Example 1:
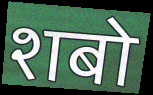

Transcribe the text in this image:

शबो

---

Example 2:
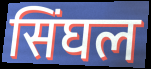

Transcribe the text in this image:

सिंघल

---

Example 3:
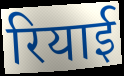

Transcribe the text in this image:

रियाई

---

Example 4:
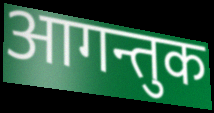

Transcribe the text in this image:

आगन्तुक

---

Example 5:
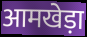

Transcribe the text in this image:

आमखेड़ा